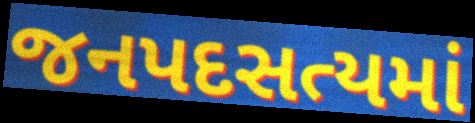
જનપદસત્યમાં